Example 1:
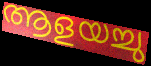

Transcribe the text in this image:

ആളയച്ചു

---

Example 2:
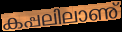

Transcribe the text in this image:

കപ്പലിലാണു്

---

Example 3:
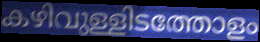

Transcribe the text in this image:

കഴിവുള്ളിടത്തോളം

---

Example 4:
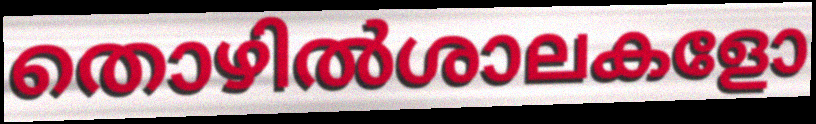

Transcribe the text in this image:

തൊഴിൽശാലകളോ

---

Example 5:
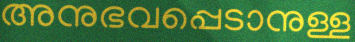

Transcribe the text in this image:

അനുഭവപ്പെടാനുള്ള